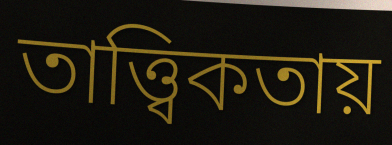
তাত্ত্বিকতায়